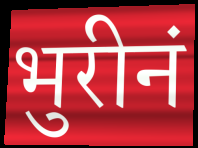
भुरीनं